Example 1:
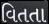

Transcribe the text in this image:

વિતતા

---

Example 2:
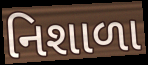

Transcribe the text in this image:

નિશાળા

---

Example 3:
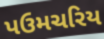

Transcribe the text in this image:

પઉમચરિય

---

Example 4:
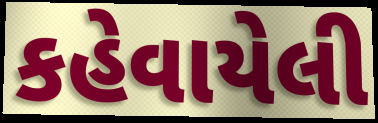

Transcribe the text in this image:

કહેવાયેલી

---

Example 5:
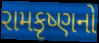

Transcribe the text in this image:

રામકૃષ્ણનો